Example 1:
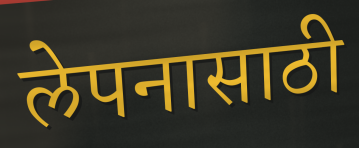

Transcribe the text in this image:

लेपनासाठी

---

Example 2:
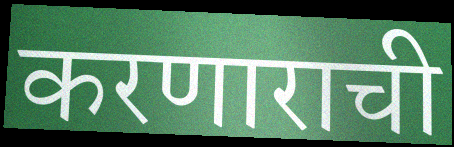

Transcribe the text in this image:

करणाराची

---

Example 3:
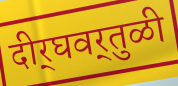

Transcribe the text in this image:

दीर्घवर्तुळी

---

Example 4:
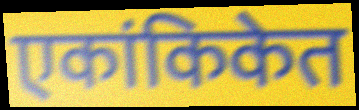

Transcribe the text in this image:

एकांकिकेत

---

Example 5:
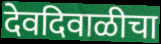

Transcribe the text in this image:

देवदिवाळीचा